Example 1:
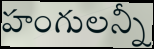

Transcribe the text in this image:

హంగులన్నీ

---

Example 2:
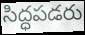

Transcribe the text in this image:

సిద్ధపడరు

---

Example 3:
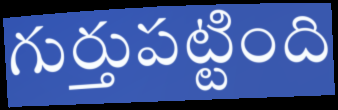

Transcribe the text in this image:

గుర్తుపట్టింది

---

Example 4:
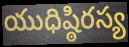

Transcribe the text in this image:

యుధిష్ఠిరస్య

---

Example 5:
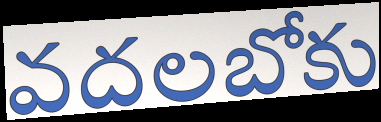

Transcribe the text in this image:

వదలబోకు